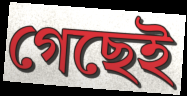
গেছেই